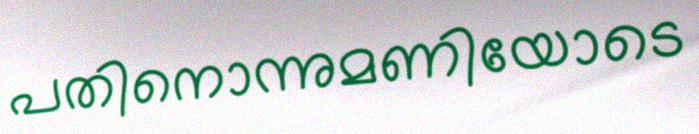
പതിനൊന്നുമണിയോടെ